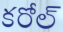
కరోల్